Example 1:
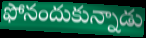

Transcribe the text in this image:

ఫోనందుకున్నాడు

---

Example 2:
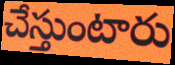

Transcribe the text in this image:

చేస్తుంటారు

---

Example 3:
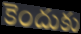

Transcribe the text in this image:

కెందుకు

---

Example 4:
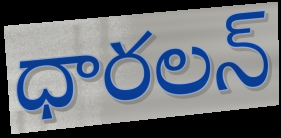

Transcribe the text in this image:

ధారలన్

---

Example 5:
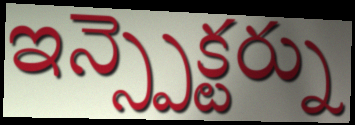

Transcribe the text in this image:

ఇన్స్పెక్టర్ను